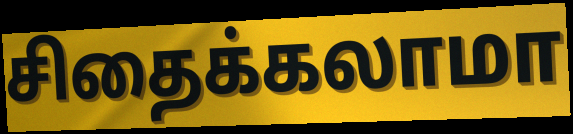
சிதைக்கலாமா